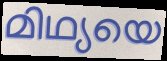
മിഥ്യയെ